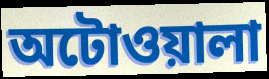
অটোওয়ালা